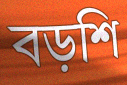
বড়শি